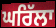
ਘਰਿੱਲਾ